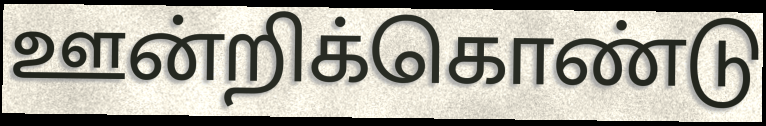
ஊன்றிக்கொண்டு